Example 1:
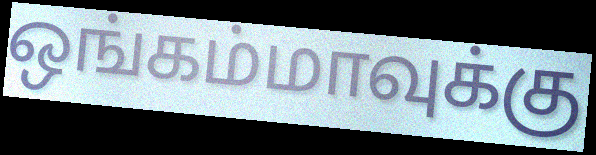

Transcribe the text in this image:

ஒங்கம்மாவுக்கு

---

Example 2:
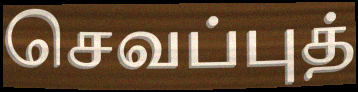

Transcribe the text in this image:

செவப்புத்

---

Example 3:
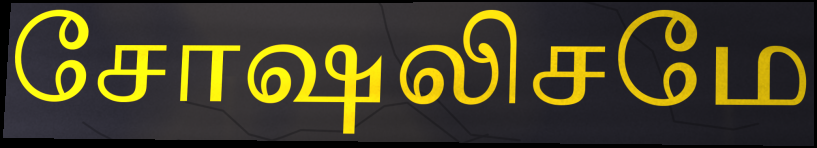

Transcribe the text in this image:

சோஷலிசமே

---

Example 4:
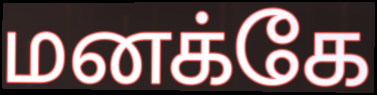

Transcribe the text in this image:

மனக்கே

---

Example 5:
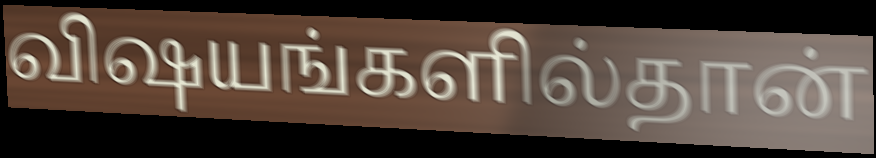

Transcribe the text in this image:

விஷயங்களில்தான்